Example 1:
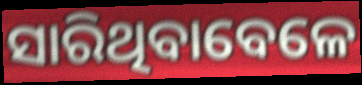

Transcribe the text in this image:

ସାରିଥିବାବେଳେ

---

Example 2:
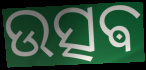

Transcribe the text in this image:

ଉତ୍ସଵ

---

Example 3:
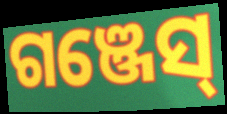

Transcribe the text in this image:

ଗଞ୍ଜେସ୍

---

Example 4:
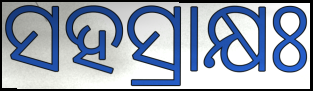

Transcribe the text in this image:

ସହସ୍ରାକ୍ଷଃ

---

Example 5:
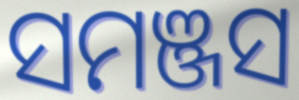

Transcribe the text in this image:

ସମଞ୍ଜସ